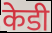
केडी